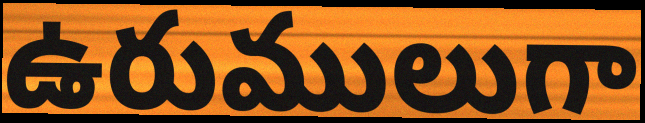
ఉరుములుగా